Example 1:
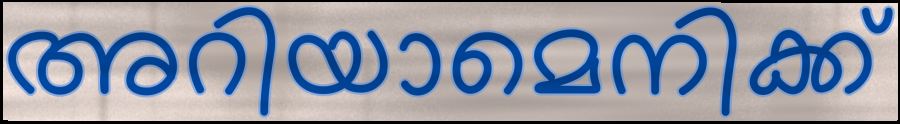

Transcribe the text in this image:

അറിയാമെനിക്ക്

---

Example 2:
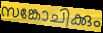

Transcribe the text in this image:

സങ്കോചിക്കും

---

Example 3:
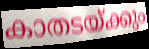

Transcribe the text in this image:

കാതടയ്ക്കും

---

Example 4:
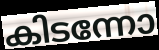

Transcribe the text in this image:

കിടന്നോ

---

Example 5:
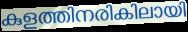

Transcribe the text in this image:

കുളത്തിനരികിലായി